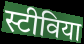
स्टीविया